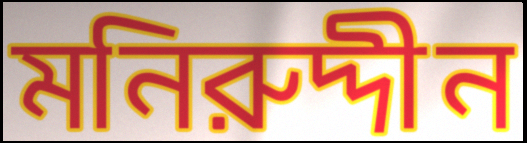
মনিরুদ্দীন